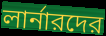
লার্নারদের